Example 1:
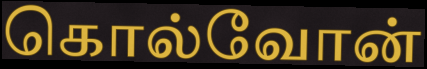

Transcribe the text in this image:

கொல்வோன்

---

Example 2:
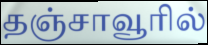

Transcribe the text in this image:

தஞ்சாவூரில்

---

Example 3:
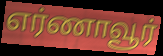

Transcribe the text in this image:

எர்ணாவூர்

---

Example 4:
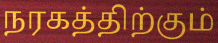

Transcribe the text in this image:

நரகத்திற்கும்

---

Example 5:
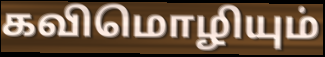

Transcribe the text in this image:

கவிமொழியும்